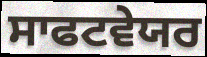
ਸਾਫਟਵੇਯਰ